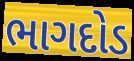
ભાગદોડ